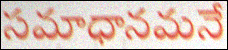
సమాధానమనే